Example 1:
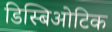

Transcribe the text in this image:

डिस्बिओटिक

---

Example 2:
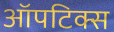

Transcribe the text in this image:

ऑपटिक्स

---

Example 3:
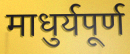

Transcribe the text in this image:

माधुर्यपूर्ण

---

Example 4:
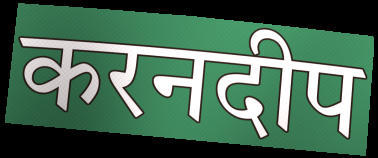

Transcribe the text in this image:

करनदीप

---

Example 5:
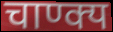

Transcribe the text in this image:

चाण्क्य